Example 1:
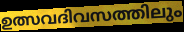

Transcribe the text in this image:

ഉത്സവദിവസത്തിലും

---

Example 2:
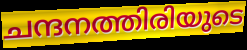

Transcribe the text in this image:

ചന്ദനത്തിരിയുടെ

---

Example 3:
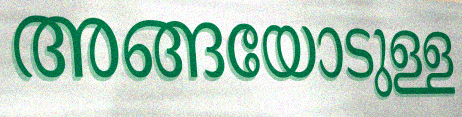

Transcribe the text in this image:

അങ്ങയോടുള്ള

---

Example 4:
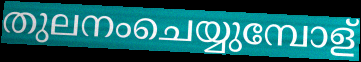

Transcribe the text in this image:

തുലനംചെയ്യുമ്പോള്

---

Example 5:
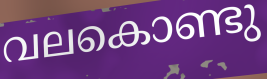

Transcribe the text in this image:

വലകൊണ്ടു